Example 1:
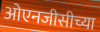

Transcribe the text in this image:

ओएनजीसीच्या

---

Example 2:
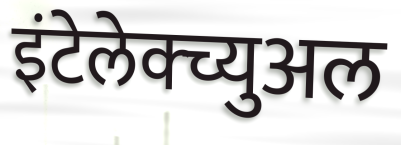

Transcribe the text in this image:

इंटेलेक्च्युअल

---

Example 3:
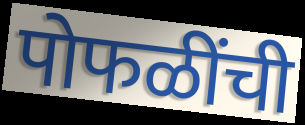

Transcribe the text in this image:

पोफळींची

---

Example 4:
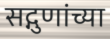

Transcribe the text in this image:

सद्गुणांच्या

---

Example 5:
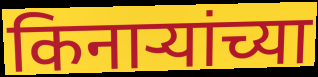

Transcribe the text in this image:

किनाऱ्यांच्या